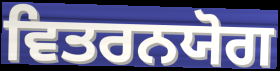
ਵਿਤਰਨਯੋਗ